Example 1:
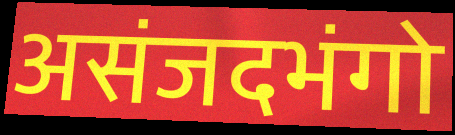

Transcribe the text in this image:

असंजदभंगो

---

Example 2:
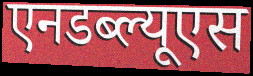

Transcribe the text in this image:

एनडब्ल्यूएस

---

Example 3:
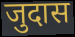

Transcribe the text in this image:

जुदास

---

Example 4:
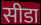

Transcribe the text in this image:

सीडा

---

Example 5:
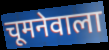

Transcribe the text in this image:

चूमनेवाला